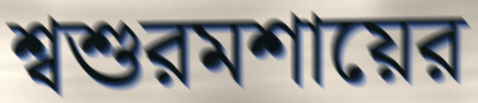
শ্বশুরমশায়ের